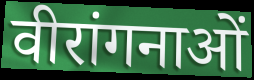
वीरांगनाओं